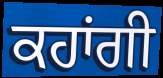
ਕਹਾਂਗੀ